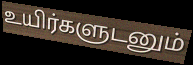
உயிர்களுடனும்